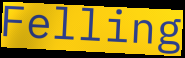
Felling